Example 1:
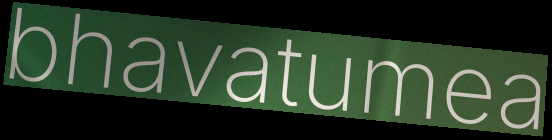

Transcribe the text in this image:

bhavatumea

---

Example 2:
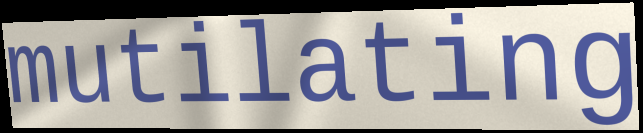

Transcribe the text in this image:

mutilating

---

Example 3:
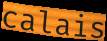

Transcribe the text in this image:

calais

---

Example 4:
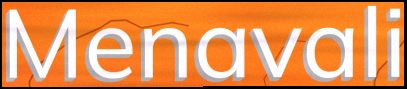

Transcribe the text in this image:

Menavali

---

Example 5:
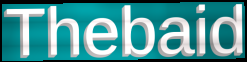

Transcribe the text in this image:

Thebaid